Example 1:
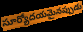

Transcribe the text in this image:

సూర్యోదయమైనప్పుడు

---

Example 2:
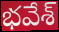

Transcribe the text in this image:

భవేశ్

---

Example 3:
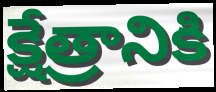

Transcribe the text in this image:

క్షేత్రానికి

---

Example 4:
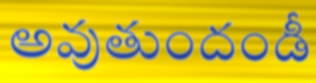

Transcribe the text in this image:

అవుతుందండీ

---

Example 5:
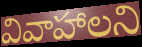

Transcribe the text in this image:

వివాహాలని